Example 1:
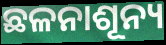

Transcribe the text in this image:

ଛଳନାଶୂନ୍ୟ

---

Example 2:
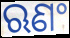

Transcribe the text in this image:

ଋଣଂ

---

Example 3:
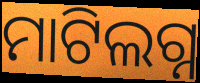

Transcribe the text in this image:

ମାଟିଲଗ୍ନ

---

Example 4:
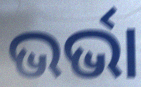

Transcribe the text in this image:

ଭର୍ଭା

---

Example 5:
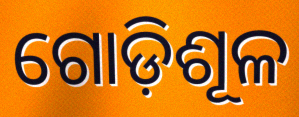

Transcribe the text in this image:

ଗୋଡ଼ିଶୂଳ